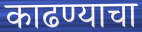
काढण्याचा